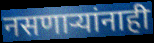
नसणार्‍यांनाही